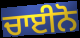
ਚਾਈਨੋ